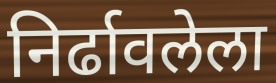
निर्ढावलेला